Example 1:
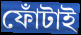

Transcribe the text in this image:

ফোঁটাই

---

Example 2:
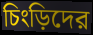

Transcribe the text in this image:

চিংড়িদের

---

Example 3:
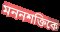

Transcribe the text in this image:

মননশক্তিকে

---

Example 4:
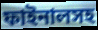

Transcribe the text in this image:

ফাইনালসহ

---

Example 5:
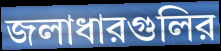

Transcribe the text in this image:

জলাধারগুলির